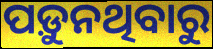
ପଡ଼ୁନଥିବାରୁ